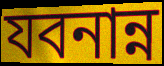
যবনান্ন